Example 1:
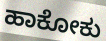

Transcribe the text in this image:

ಹಾಕೋಕು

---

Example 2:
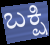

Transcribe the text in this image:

ಬಕ್ಷಿ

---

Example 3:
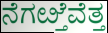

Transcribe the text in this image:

ನೆಗೞ್ತೆವೆತ್ತ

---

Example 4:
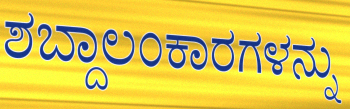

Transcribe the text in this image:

ಶಬ್ದಾಲಂಕಾರಗಳನ್ನು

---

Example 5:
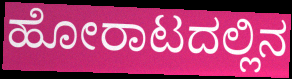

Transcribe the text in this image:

ಹೋರಾಟದಲ್ಲಿನ